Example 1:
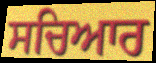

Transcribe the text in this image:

ਸਚਿਆਰ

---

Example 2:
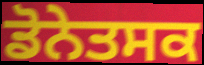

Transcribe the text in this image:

ਡੋਨੇਤਸਕ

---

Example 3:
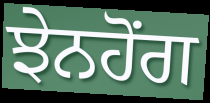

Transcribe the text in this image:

ਝੇਨਹੋਂਗ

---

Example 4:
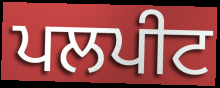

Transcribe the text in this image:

ਪਲਪੀਟ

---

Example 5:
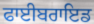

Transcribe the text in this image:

ਫਾਈਬਰਾਇਡ